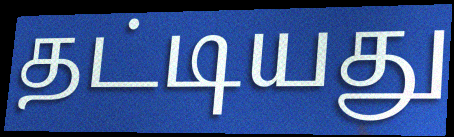
தட்டியது